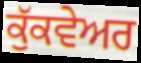
ਕੁੱਕਵੇਅਰ